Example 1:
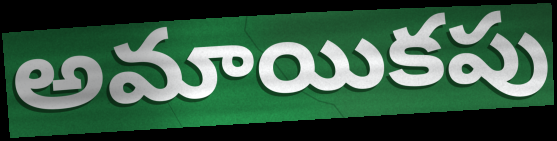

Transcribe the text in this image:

అమాయికపు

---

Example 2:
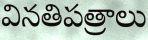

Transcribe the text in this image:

వినతిపత్రాలు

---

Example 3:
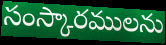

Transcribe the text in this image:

సంస్కారములను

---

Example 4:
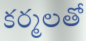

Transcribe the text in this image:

కర్మలతో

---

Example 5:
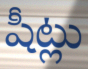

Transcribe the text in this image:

షీట్లు